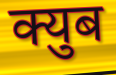
क्युब